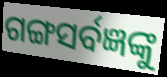
ଗଙ୍ଗସର୍ବଜ୍ଞଙ୍କୁ